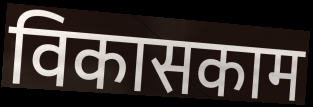
विकासकाम